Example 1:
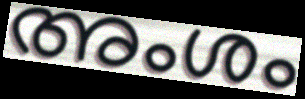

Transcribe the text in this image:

അംശം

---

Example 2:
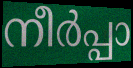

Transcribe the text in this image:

നീർപ്പാ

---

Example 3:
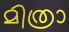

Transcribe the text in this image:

മിത്രാ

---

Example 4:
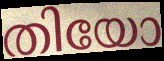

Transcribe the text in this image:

തിയോ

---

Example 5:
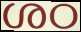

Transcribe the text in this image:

ശഠ